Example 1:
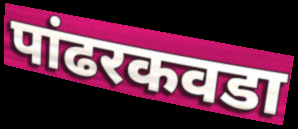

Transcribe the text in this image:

पांढरकवडा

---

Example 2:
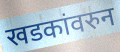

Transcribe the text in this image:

खडकांवरुन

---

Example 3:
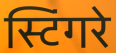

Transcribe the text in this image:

स्टिंगरे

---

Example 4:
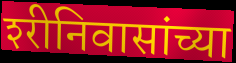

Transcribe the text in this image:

श्रीनिवासांच्या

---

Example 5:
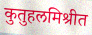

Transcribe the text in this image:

कुतुहलमिश्रीत